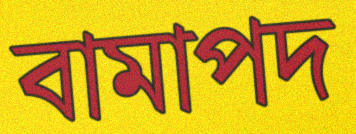
বামাপদ